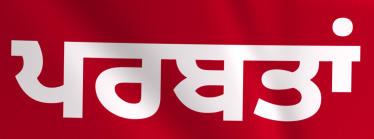
ਪਰਬਤਾਂ